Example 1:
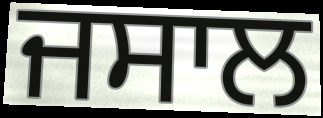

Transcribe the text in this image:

ਜਸਾਲ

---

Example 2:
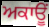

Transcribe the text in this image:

ਅਕਾਊਂ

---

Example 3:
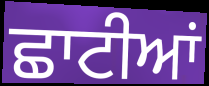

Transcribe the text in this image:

ਛਾਟੀਆਂ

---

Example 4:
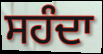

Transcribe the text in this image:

ਸਹੰਦਾ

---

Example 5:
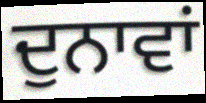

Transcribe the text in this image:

ਦੁਨਾਵਾਂ